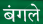
बंगले